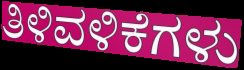
ತಿಳಿವಳಿಕೆಗಳು